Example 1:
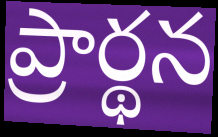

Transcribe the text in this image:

ప్రార్థన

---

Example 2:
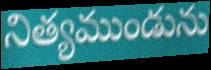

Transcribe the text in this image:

నిత్యముండును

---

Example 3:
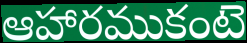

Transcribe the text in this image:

ఆహారముకంటె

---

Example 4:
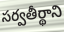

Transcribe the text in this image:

సర్వతీర్థాని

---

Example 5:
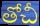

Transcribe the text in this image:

తోచీ